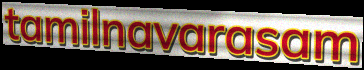
tamilnavarasam